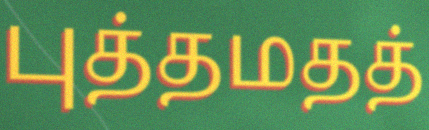
புத்தமதத்